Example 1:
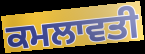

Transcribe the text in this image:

ਕਮਲਾਵਤੀ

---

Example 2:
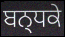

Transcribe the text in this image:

ਬਨ੍ਧਕੇ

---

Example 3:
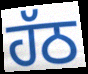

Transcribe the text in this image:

ਹੱਠ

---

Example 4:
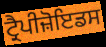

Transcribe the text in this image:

ਟ੍ਰੈਪੀਜ਼ੋਇਡਸ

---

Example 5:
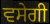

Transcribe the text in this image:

ਵਸੇਗੀ